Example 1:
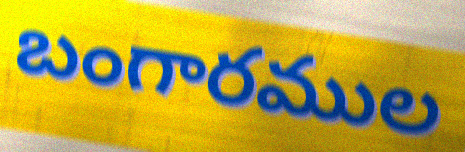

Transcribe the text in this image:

బంగారముల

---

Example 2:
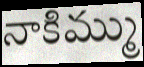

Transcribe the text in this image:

నాకిమ్ము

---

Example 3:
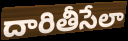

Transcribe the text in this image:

దారితీసేలా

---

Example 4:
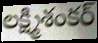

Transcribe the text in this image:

లక్ష్మిశంకర్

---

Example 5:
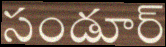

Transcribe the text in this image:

సండూర్